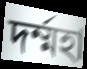
দৰ্ম্মহা